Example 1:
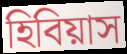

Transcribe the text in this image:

হিবিয়াস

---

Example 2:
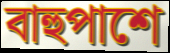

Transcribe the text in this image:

বাহুপাশে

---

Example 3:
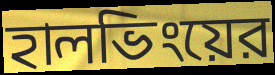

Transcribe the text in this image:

হালভিংয়ের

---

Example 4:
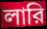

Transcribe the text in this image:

লারি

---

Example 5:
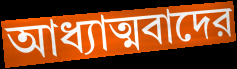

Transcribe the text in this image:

আধ্যাত্মবাদের